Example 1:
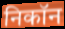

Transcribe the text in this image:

निकॉन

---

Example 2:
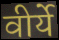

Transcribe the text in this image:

वीर्ये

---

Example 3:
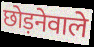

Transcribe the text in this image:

छोड़नेवाले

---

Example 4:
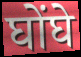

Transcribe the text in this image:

घोंघे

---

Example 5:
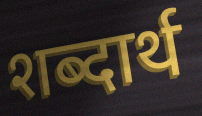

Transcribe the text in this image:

शब्दार्थ